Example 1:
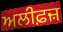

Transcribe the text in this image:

ਅਲੀਫ਼ਜ਼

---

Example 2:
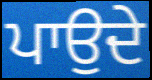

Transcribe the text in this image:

ਪਾਉਦੇ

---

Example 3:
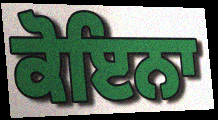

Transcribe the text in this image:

ਕੋਇਨਾ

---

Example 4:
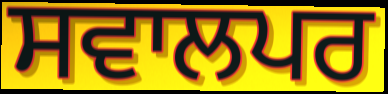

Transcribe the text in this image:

ਸਵਾਲਪਰ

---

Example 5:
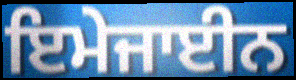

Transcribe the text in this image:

ਇਮੇਜਾਈਨ